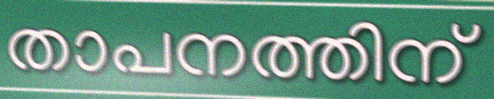
താപനത്തിന്